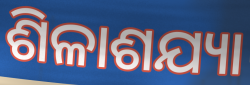
ଶିଳାଶଯ୍ୟା